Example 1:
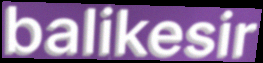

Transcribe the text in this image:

balikesir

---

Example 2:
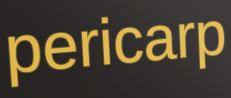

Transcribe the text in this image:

pericarp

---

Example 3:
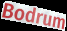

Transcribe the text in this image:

Bodrum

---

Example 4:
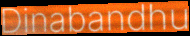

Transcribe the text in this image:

Dinabandhu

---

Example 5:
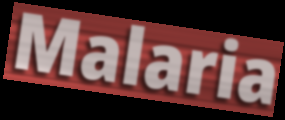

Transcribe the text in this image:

Malaria